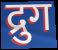
द्रुग